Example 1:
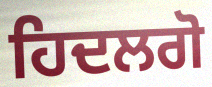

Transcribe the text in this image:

ਹਿਦਲਗੋ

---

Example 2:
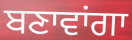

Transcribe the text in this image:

ਬਣਾਵਾਂਗਾ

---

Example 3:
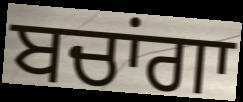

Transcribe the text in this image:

ਬਚਾਂਗਾ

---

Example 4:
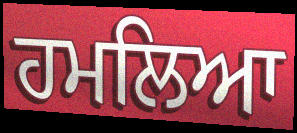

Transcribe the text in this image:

ਹਮਲਿਆ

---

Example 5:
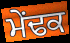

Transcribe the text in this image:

ਮੇਂਢਕ